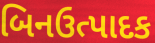
બિનઉત્પાદક